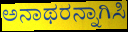
ಅನಾಥರನ್ನಾಗಿಸಿ